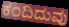
ಕಂದಿದುವು